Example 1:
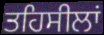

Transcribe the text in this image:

ਤਹਿਸੀਲਾਂ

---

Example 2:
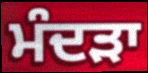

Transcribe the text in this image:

ਮੰਦੜਾ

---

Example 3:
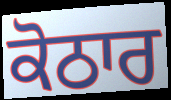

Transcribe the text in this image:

ਕੋਠਾਰ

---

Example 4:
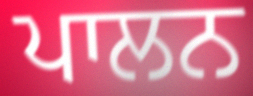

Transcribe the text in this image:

ਪਾਲਨ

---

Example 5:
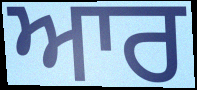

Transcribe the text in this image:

ਆਰ